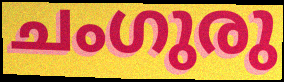
ചംഗുരു